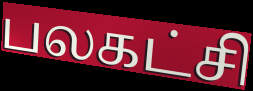
பலகட்சி